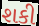
શકી